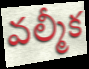
వల్మీక